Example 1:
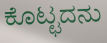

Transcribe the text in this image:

ಕೊಟ್ಟದನು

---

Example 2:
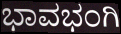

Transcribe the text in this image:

ಭಾವಭಂಗಿ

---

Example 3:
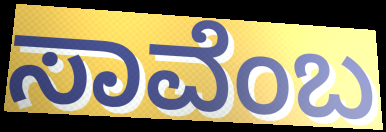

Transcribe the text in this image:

ಸಾವೆಂಬ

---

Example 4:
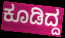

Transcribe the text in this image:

ಕೂಡಿದ್ದ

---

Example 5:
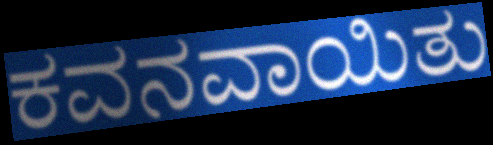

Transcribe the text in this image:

ಕವನವಾಯಿತು